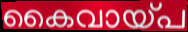
കൈവായ്പ